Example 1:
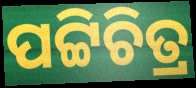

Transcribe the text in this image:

ପଟ୍ଟିଚିତ୍ର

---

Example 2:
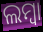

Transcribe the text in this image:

ଲମ୍ବା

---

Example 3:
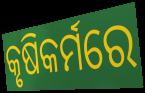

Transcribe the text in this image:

କୃଷିକର୍ମରେ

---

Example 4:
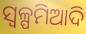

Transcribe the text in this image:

ସ୍ବଳ୍ପମିଆଦି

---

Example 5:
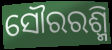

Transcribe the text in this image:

ସୌରରଶ୍ମି